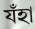
যঁহা